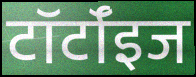
टॉर्टॉइज